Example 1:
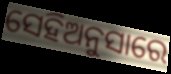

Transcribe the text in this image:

ସେହିଅନୁସାରେ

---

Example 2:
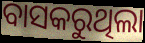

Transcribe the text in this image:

ବାସକରୁଥିଲା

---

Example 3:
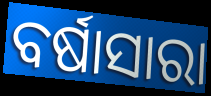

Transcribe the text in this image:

ବର୍ଷାସାରା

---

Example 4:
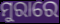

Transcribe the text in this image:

ମୁରାରେ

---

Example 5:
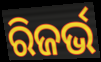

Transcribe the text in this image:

ରିଜର୍ଭ